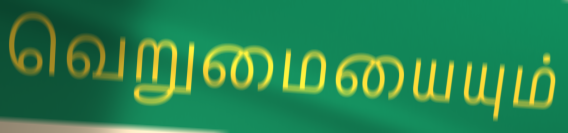
வெறுமையையும்